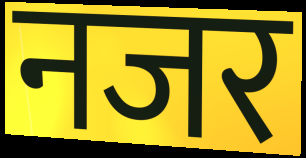
नजर